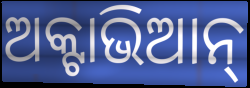
ଅକ୍ଟାଭିଆନ୍